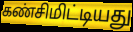
கண்சிமிட்டியது